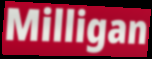
Milligan